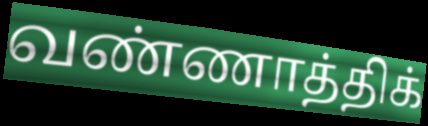
வண்ணாத்திக்